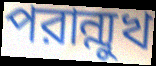
পরান্মুখ